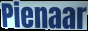
Pienaar